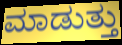
ಮಾಡುತ್ತು